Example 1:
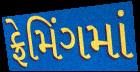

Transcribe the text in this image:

ફ્રેમિંગમાં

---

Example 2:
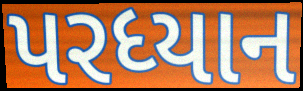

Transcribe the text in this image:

પરધ્યાન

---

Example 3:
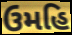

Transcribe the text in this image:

ઉમહિ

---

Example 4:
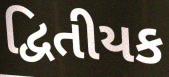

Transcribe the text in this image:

દ્વિતીયક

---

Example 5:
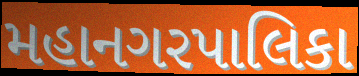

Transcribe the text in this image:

મહાનગરપાલિકા